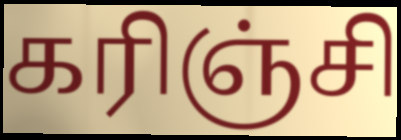
கரிஞ்சி